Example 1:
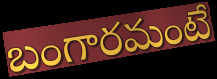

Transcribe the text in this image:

బంగారమంటే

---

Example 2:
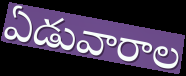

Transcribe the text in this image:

ఏడువారాల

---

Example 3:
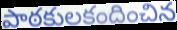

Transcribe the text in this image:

పాఠకులకందించిన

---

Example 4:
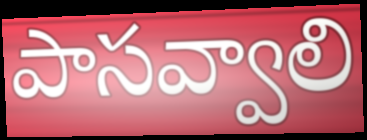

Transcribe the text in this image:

పాసవ్వాలి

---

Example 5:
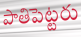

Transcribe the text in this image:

పాతిపెట్టరు